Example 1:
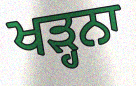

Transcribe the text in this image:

ਖੜ੍ਹਨਾ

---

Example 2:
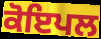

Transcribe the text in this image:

ਕੋਇਪਲ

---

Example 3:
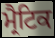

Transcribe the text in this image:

ਮ੍ਰੈਟਿਕ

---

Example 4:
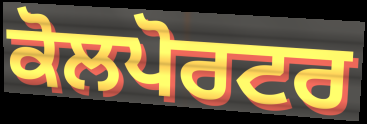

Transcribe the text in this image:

ਕੋਲਪੋਰਟਰ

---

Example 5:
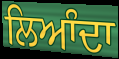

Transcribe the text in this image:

ਲਿਆੰਦਾ